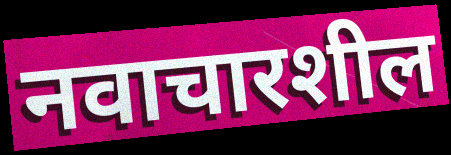
नवाचारशील